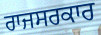
ਰਾਜਸਰਕਾਰ